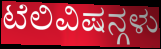
ಟೆಲಿವಿಷನ್ಗಳು